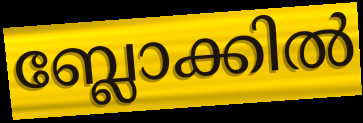
ബ്ലോക്കിൽ